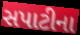
સપાટીના